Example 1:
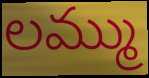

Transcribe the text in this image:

లమ్ము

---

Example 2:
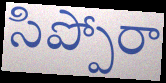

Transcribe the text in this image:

సిప్పోరా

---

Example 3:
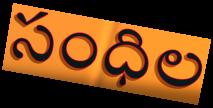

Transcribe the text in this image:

సంధిల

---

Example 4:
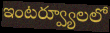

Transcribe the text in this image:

ఇంటర్వ్యూలలో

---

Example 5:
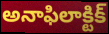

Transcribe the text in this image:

అనాఫిలాక్టిక్